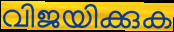
വിജയിക്കുക